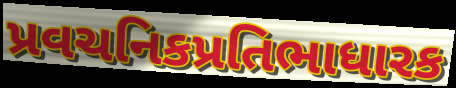
પ્રવચનિકપ્રતિભાધારક